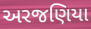
અરજણિયા